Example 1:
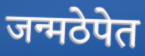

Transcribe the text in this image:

जन्मठेपेत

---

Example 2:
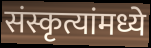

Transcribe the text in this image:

संस्कृत्यांमध्ये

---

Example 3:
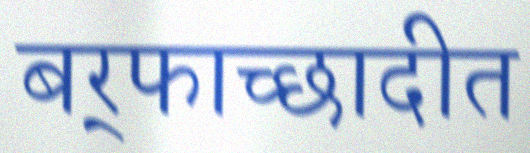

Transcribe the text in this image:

बर्फाच्छादीत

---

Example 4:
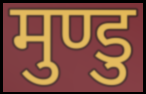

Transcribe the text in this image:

मुण्डु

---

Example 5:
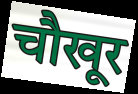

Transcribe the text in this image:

चौखूर